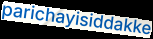
parichayisiddakke